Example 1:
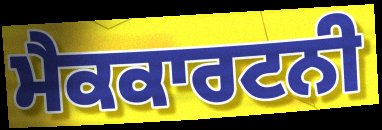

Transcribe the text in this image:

ਮੈਕਕਾਰਟਨੀ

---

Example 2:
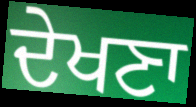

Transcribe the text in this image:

ਦੇਖਣਾ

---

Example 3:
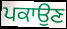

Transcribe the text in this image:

ਪਕਾਉਣ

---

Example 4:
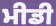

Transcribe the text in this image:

ਮੀਡੀ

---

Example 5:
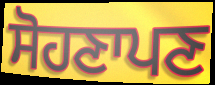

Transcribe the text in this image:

ਸੋਹਣਾਪਣ